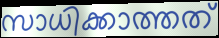
സാധിക്കാത്തത്